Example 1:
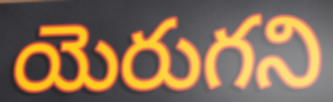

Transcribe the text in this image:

యెరుగని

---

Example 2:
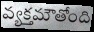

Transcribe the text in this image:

వ్యక్తమౌతోంది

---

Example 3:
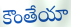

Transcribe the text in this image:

కౌంతేయా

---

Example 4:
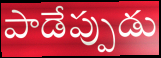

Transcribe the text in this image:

పాడేప్పుడు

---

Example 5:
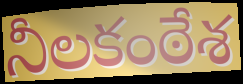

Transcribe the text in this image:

నీలకంఠేశ